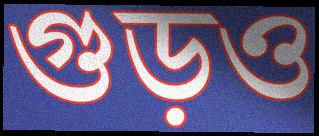
গুড়ও